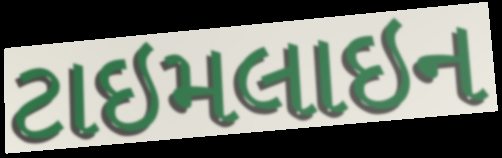
ટાઇમલાઇન